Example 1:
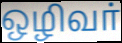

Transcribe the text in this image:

ஒழிவர்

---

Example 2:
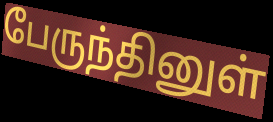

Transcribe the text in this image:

பேருந்தினுள்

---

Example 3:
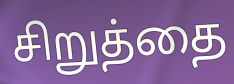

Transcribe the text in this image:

சிறுத்தை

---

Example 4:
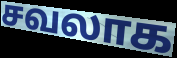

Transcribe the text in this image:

சவலாக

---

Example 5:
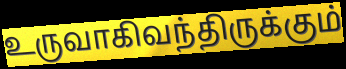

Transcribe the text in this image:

உருவாகிவந்திருக்கும்